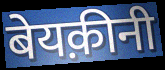
बेयक़ीनी